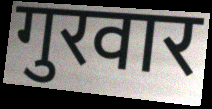
गुरवार